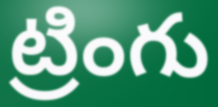
ట్రింగు